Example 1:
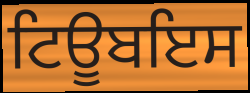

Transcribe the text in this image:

ਟਿਊਬਇਸ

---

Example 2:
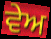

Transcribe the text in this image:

ਵੇਅ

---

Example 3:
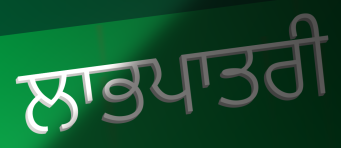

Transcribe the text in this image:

ਲਾਭਪਾਤਰੀ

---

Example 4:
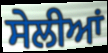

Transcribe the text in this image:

ਸੇਲੀਆਂ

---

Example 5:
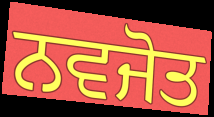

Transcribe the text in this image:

ਨਵਜੋਤ